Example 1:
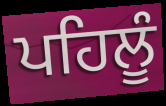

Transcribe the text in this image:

ਪਹਿਲੂੰ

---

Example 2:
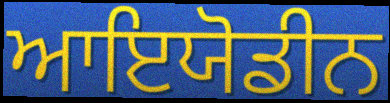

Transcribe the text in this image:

ਆਇਯੋਡੀਨ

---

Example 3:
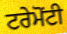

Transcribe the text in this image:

ਟਰੇਮੋਂਟੀ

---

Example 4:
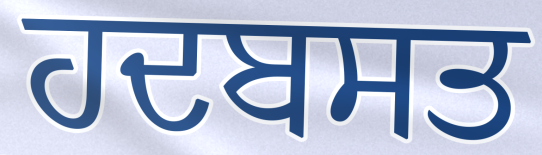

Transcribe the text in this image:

ਹਦਬਸਤ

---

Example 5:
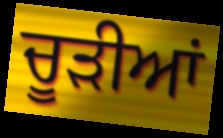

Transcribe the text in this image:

ਚੂੜੀਆਂ